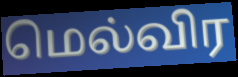
மெல்விர